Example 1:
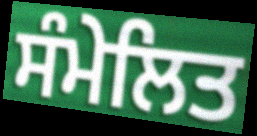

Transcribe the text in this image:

ਸੰਮੇਲਿਤ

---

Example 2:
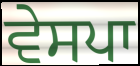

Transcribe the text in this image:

ਵੇਸਪਾ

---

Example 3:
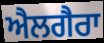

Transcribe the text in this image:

ਐਲਗੈਰਾ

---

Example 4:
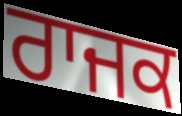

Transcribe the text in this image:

ਰਾਜਕ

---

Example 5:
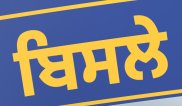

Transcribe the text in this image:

ਬਿਸਲੇ